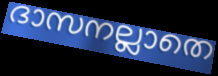
ദാസനല്ലാതെ